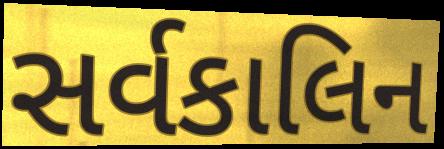
સર્વકાલિન